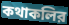
কথাকলির